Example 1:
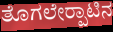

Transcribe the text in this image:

ತೊಗಲೇರ‍್ಪಾಟಿನ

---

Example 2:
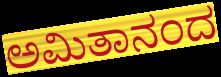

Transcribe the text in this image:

ಅಮಿತಾನಂದ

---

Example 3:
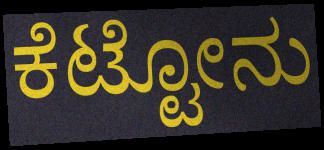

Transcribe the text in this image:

ಕೆಟ್ಟೋನು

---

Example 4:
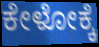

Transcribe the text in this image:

ಕೇಳೋಕ್ಕೆ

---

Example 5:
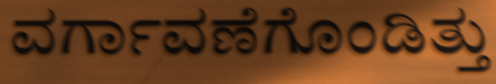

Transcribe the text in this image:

ವರ್ಗಾವಣೆಗೊಂಡಿತ್ತು